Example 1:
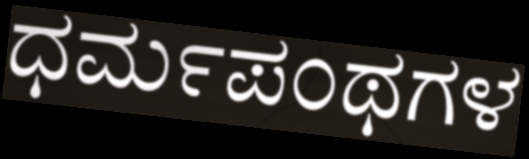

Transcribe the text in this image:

ಧರ್ಮಪಂಥಗಳ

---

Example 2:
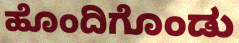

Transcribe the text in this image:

ಹೊಂದಿಗೊಂಡು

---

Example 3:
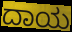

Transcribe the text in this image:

ದಾಯ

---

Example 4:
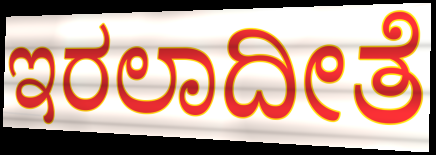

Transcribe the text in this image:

ಇರಲಾದೀತೆ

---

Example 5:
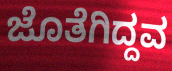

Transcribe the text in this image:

ಜೊತೆಗಿದ್ದವ